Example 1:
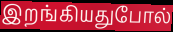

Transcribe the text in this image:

இறங்கியதுபோல்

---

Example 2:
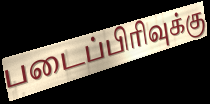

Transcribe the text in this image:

படைப்பிரிவுக்கு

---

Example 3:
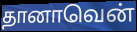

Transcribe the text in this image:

தானாவென்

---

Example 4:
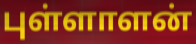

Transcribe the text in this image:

புள்ளாளன்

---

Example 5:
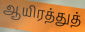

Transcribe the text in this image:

ஆயிரத்துத்